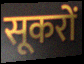
सूकरों